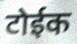
टोईक